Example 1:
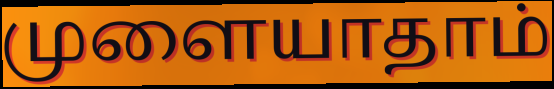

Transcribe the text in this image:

முளையாதாம்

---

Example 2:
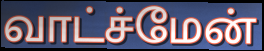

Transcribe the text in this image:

வாட்ச்மேன்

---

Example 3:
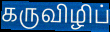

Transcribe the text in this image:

கருவிழிப்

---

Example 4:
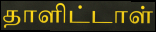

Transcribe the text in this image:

தாளிட்டாள்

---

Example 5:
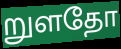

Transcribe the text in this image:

றுளதோ